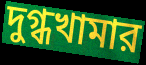
দুগ্ধখামার